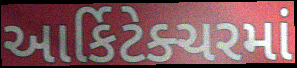
આર્કિટેક્ચરમાં